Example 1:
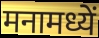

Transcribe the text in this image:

मनामध्यें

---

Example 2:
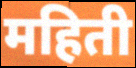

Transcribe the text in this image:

महिती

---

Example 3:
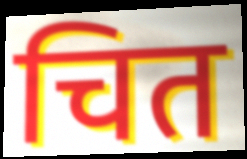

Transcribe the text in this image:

चित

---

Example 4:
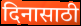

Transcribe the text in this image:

दिनासाठी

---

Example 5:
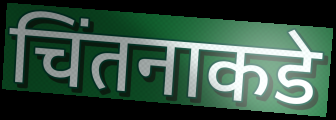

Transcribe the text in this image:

चिंतनाकडे